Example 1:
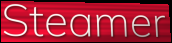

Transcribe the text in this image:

Steamer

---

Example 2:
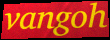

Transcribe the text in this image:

vangoh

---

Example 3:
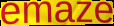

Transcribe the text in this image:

emaze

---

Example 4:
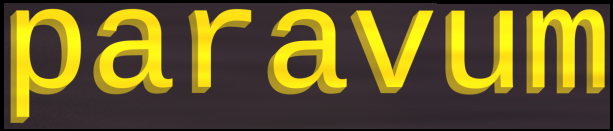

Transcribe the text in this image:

paravum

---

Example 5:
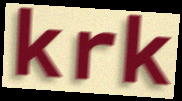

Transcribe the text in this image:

krk